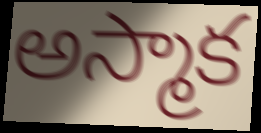
అస్మాక